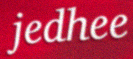
jedhee